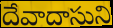
దేవాదాసుని